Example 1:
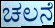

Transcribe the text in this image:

ಚಲನೆ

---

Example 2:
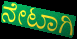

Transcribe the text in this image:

ನೇಟಾಗಿ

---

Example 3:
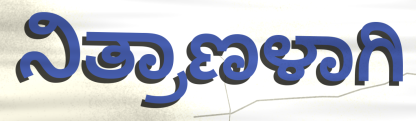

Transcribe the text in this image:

ನಿತ್ರಾಣಳಾಗಿ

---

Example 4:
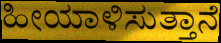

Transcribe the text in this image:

ಹೀಯಾಳಿಸುತ್ತಾನೆ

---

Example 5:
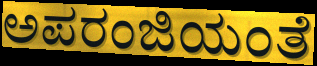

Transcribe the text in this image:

ಅಪರಂಜಿಯಂತೆ